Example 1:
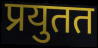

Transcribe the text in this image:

प्रयुतत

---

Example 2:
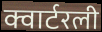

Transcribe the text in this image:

क्वार्टरली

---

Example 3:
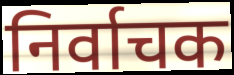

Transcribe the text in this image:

निर्वाचक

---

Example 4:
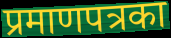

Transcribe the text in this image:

प्रमाणपत्रका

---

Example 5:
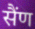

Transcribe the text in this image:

सैंण